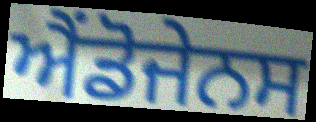
ਐਂਡੋਜੇਨਸ